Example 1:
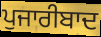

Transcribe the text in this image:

ਪੁਜਾਰੀਬਾਦ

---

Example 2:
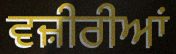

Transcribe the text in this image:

ਵਜ਼ੀਰੀਆਂ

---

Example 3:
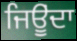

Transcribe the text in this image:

ਜਿਊੂਂਦਾ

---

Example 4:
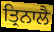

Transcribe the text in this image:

ਤ੍ਰਿਨਾਲੈ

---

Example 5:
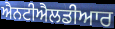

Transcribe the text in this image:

ਐਨਟੀਐਲਡੀਆਰ